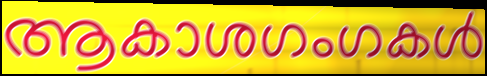
ആകാശഗംഗകൾ